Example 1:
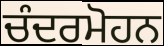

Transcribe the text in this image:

ਚੰਦਰਮੋਹਨ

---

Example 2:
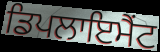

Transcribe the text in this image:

ਡਿਪਲਾਇਮੈਂਟ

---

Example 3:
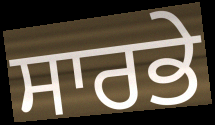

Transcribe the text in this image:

ਸਾਰਭੇ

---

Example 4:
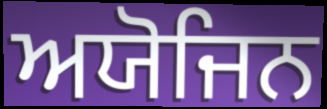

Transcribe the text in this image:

ਅਯੋਜਿਨ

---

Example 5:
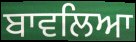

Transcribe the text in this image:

ਬਾਵਲਿਆ